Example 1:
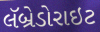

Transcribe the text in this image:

લૅબ્રેડોરાઇટ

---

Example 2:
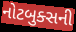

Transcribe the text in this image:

નોટબુક્સની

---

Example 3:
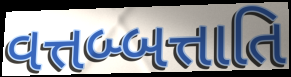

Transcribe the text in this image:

વત્તબ્બત્તાતિ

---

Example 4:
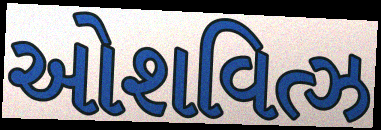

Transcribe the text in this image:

ઓશવિત્ઝ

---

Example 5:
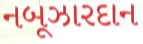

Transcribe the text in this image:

નબૂઝારદાન